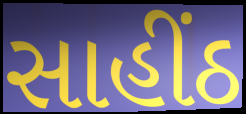
સાહીંઠ